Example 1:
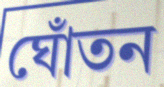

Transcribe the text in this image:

ঘোঁতন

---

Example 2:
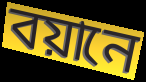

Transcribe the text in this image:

বয়ানে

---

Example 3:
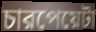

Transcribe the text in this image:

চারপেয়েটা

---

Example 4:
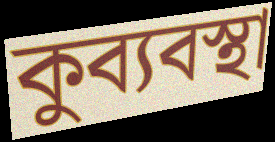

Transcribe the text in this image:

কুব্যবস্থা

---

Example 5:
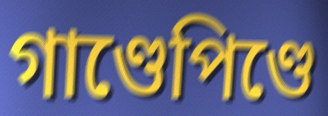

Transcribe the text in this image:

গাণ্ডেপিণ্ডে